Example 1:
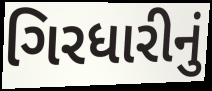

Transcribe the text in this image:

ગિરધારીનું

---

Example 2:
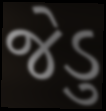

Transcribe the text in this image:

જેડુ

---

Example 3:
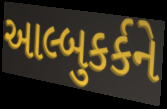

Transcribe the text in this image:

આલ્બુકર્કને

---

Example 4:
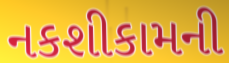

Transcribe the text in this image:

નકશીકામની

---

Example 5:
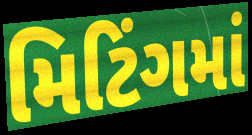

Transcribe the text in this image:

મિટિંગમાં